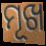
ମୂଖ